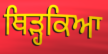
ਥਿੜ੍ਹਕਿਆ